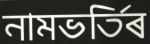
নামভৰ্তিৰ